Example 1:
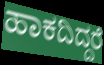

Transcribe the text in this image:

ಹಾಕದಿದ್ದರೆ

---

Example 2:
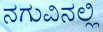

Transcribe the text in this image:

ನಗುವಿನಲ್ಲಿ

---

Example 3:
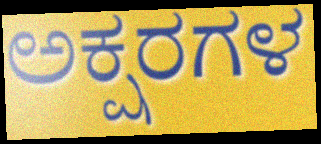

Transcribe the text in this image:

ಅಕ್ಷರಗಳ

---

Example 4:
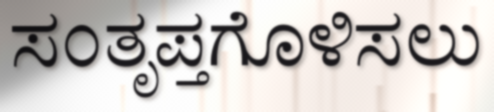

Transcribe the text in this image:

ಸಂತೃಪ್ತಗೊಳಿಸಲು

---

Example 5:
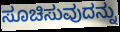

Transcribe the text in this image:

ಸೂಚಿಸುವುದನ್ನು